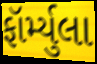
ફૉર્મ્યુલા